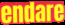
endare